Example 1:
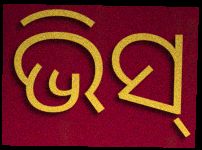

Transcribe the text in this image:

ଭିସ୍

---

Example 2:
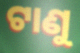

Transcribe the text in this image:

ଟାଣୁ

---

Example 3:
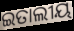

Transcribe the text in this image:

ଇତାଲୀୟ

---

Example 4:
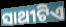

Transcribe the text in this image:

ସାଥୀଟିଏ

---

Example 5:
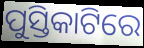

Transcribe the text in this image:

ପୁସ୍ତିକାଟିରେ